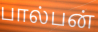
பால்பன்